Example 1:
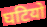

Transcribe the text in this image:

घटियो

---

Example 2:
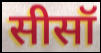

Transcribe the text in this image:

सीसॉ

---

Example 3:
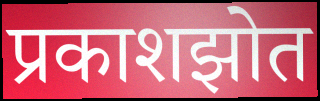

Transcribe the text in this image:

प्रकाशझोत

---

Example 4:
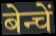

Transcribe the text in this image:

बेन्चें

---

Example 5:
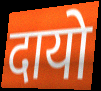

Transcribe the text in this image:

दायो